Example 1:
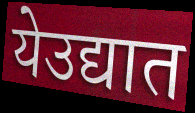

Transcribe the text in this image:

येउद्यात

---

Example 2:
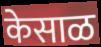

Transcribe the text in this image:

केसाळ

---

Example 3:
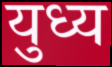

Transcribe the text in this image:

युध्य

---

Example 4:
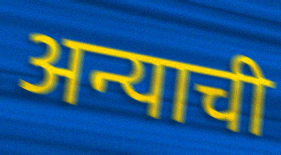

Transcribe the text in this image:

अन्याची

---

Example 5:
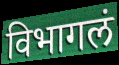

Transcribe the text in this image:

विभागलं